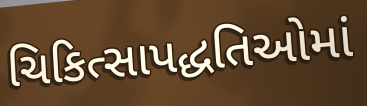
ચિકિત્સાપદ્ધતિઓમાં